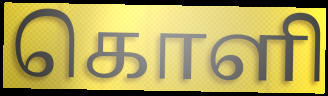
கொளி